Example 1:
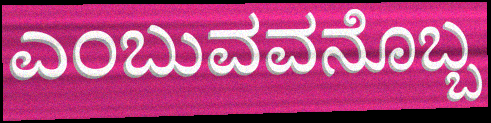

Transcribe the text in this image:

ಎಂಬುವವನೊಬ್ಬ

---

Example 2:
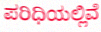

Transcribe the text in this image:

ಪರಿಧಿಯಲ್ಲಿವೆ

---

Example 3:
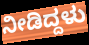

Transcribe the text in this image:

ನೀಡಿದ್ದಳು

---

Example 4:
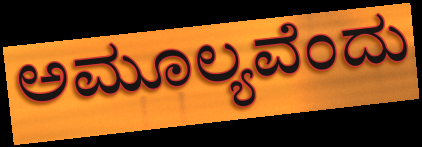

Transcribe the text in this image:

ಅಮೂಲ್ಯವೆಂದು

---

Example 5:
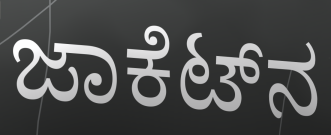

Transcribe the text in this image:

ಜಾಕೆಟ್‌ನ